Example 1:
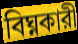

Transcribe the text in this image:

বিঘ্নকারী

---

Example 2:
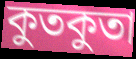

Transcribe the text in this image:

কুতকুতা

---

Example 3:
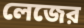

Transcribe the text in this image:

লেজের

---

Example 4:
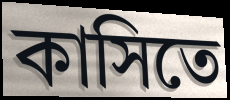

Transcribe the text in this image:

কাসিতে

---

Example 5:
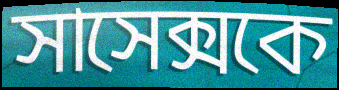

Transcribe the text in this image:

সাসেক্সকে